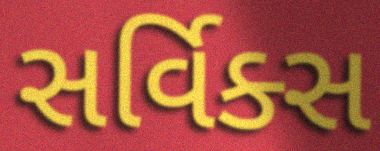
સર્વિક્સ